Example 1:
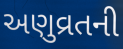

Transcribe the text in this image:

અણુવ્રતની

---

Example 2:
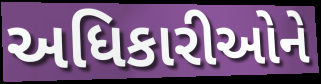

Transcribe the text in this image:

અધિકારીઓને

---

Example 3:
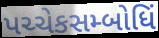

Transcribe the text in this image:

પચ્ચેકસમ્બોધિં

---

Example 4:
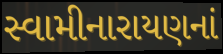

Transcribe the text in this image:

સ્વામીનારાયણનાં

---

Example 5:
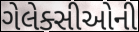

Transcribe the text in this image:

ગેલેક્સીઓની